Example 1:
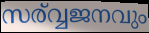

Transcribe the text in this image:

സര്വ്വജനവും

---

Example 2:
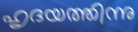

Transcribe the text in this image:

ഹൃദയത്തിന്നു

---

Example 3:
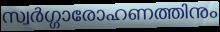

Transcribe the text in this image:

സ്വർഗ്ഗാരോഹണത്തിനും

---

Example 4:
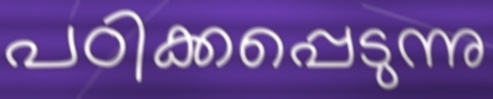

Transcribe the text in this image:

പഠിക്കപ്പെടുന്നു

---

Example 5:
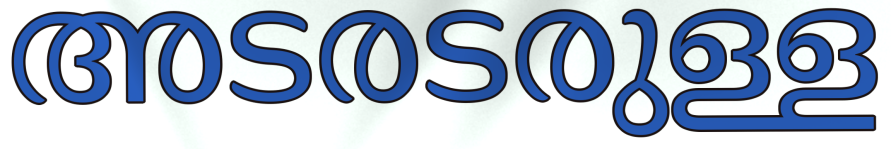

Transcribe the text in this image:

അടരടരുള്ള